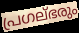
പ്രഗല്ഭരും